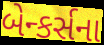
બેન્કર્સના